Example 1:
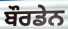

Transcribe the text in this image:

ਬੌਰਡੇਨ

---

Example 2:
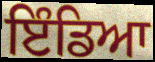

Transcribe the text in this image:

ਇੰਡਿਆ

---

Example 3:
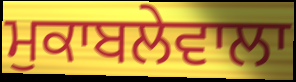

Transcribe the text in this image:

ਮੁਕਾਬਲੇਵਾਲਾ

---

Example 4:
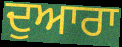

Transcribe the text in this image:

ਦੁਆਰਾ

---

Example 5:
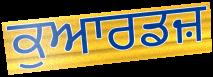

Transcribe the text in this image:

ਕੁਆਰਡਜ਼